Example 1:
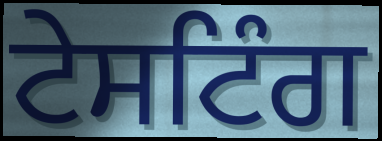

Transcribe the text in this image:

ਟੇਸਟਿੰਗ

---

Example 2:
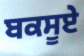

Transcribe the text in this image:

ਬਕਸੂਏ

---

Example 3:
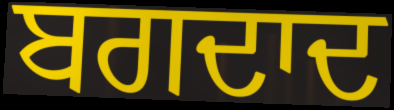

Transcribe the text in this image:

ਬਗਦਾਦ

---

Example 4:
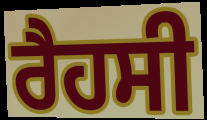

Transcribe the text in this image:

ਰੈਹਸੀ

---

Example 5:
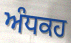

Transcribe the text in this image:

ਅੰਧਕਹ